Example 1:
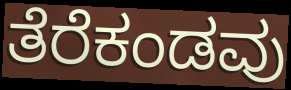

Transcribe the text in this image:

ತೆರೆಕಂಡವು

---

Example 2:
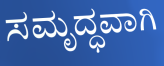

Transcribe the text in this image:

ಸಮೃದ್ಧವಾಗಿ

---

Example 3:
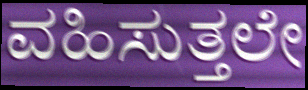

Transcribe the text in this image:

ವಹಿಸುತ್ತಲೇ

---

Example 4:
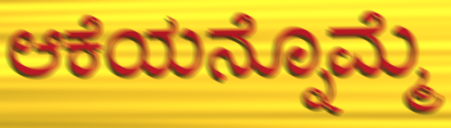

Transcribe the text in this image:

ಆಕೆಯನ್ನೊಮ್ಮೆ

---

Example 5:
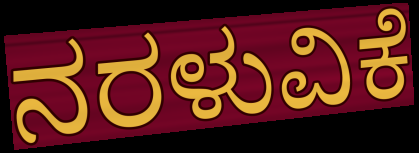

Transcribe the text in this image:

ನರಳುವಿಕೆ